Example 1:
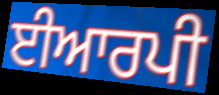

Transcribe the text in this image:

ਈਆਰਪੀ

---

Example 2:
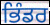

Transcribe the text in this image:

ਭਿੰਡਰ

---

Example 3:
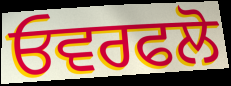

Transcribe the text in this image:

ਓਵਰਫਲੋ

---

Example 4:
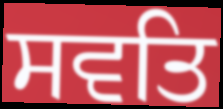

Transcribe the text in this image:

ਸਵਤਿ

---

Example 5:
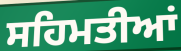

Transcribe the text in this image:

ਸਹਿਮਤੀਆਂ